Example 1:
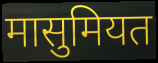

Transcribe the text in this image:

मासुमियत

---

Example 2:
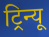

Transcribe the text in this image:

ट्रिन्यू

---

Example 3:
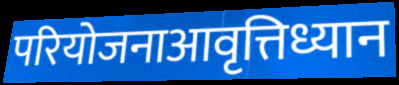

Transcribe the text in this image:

परियोजनाआवृत्तिध्यान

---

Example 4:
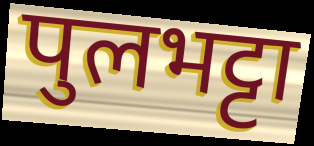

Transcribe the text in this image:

पुलभट्टा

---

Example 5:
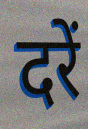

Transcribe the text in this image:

दरें